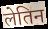
लेतिन